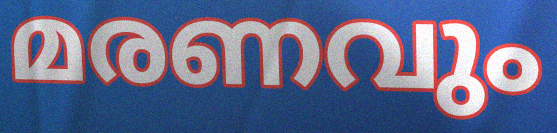
മരണവും